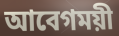
আবেগময়ী